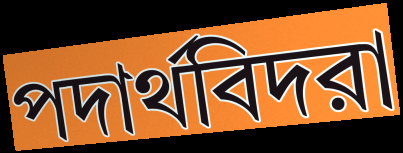
পদার্থবিদরা